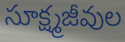
సూక్ష్మజీవుల